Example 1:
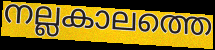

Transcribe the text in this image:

നല്ലകാലത്തെ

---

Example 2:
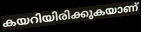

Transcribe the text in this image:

കയറിയിരിക്കുകയാണ്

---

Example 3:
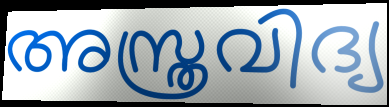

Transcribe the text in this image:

അസ്ത്രവിദ്യ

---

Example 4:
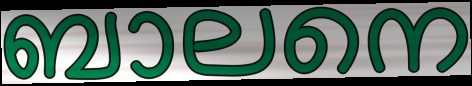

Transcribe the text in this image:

ബാലനെ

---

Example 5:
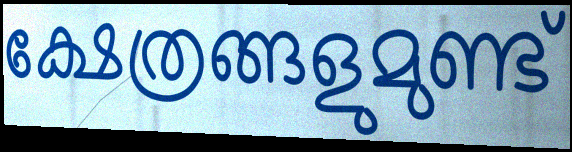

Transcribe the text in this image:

ക്ഷേത്രങ്ങളുമുണ്ട്